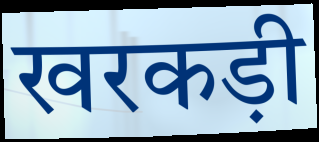
खरकड़ी